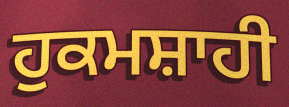
ਹੁਕਮਸ਼ਾਹੀ